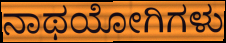
ನಾಥಯೋಗಿಗಳು